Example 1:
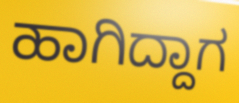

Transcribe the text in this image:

ಹಾಗಿದ್ದಾಗ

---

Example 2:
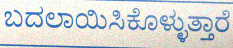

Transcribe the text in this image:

ಬದಲಾಯಿಸಿಕೊಳ್ಳುತ್ತಾರೆ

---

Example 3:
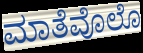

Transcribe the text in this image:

ಮಾತೆವೊಲೊ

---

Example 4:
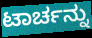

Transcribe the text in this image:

ಟಾರ್ಚನ್ನು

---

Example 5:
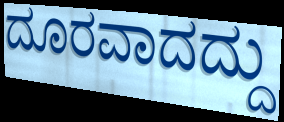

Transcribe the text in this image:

ದೂರವಾದದ್ದು